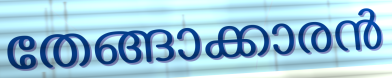
തേങ്ങാക്കാരൻ